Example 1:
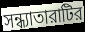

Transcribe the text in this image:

সন্ধ্যাতারাটির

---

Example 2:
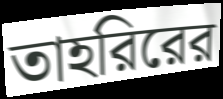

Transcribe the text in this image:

তাহরিরের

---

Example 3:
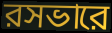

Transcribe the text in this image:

রসভারে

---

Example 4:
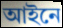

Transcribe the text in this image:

আইনে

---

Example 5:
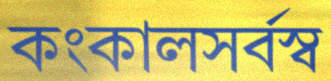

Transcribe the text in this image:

কংকালসর্বস্ব